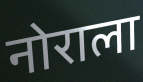
नोराला